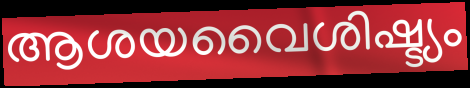
ആശയവൈശിഷ്ട്യം